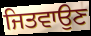
ਜਿਤਵਾਉਣ